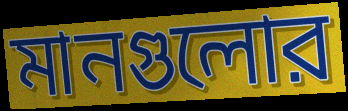
মানগুলোর